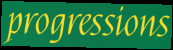
progressions